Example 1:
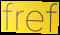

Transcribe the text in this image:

fref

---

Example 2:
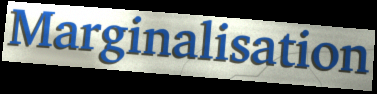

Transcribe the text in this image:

Marginalisation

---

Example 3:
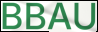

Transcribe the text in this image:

BBAU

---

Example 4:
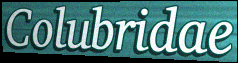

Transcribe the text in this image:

Colubridae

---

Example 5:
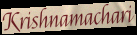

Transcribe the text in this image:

Krishnamachari